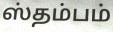
ஸ்தம்பம்